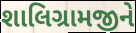
શાલિગ્રામજીને